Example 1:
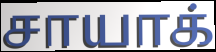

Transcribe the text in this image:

சாயாக்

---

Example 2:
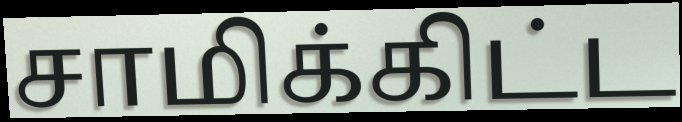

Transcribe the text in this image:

சாமிக்கிட்ட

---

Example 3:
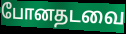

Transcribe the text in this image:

போனதடவை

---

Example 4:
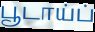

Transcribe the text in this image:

பூடாய்ப்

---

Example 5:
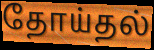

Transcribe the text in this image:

தோய்தல்